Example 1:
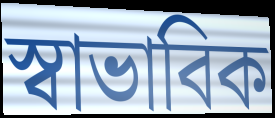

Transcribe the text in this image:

স্বাভাবিক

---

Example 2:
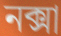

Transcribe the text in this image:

নক্সা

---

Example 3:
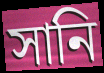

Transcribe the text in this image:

সানি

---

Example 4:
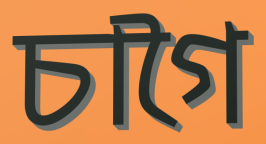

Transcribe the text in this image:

চাগৈ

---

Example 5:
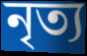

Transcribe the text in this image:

নৃত্য